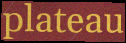
plateau